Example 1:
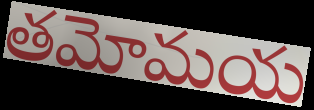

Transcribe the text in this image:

తమోమయ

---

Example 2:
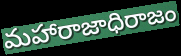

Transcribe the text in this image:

మహారాజాధిరాజం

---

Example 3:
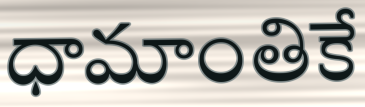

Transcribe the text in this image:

ధామాంతికే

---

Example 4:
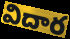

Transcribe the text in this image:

విదార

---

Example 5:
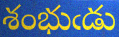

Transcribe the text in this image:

శంభుఁడు